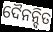
ଦୈନନ୍ଦିତ